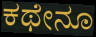
ಕಥೇನೂ